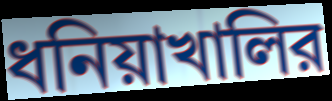
ধনিয়াখালির